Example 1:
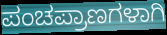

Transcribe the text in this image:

ಪಂಚಪ್ರಾಣಗಳಾಗಿ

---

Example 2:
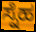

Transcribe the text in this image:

ಸ್ನೆಹ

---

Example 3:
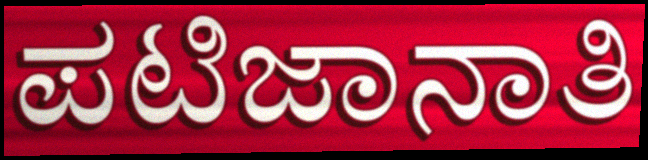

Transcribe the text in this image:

ಪಟಿಜಾನಾತಿ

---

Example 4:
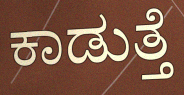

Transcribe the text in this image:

ಕಾಡುತ್ತೆ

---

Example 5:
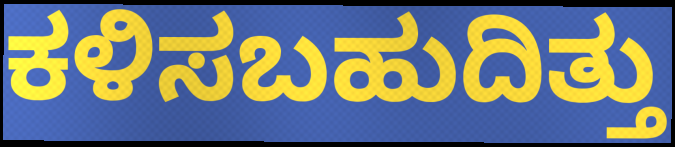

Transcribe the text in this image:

ಕಳಿಸಬಹುದಿತ್ತು